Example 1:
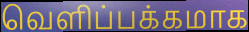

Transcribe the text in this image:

வெளிப்பக்கமாக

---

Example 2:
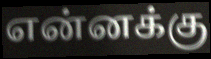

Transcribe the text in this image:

என்னக்கு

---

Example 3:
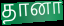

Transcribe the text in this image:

தானா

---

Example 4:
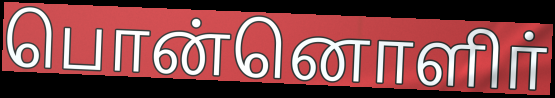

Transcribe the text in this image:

பொன்னொளிர்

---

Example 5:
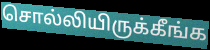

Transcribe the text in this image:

சொல்லியிருக்கீங்க